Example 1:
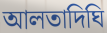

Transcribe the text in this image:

আলতাদিঘি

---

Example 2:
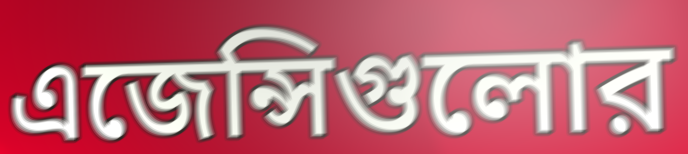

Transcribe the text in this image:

এজেন্সিগুলোর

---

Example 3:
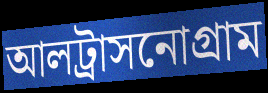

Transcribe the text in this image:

আলট্রাসনোগ্রাম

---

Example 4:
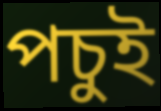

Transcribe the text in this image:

পচুই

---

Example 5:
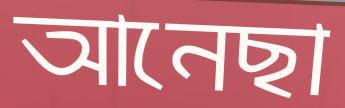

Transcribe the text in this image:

আনেছা